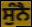
ਸੁੰਨੈ